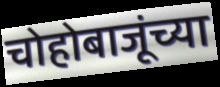
चोहोबाजूंच्या